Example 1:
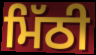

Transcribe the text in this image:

ਮਿੱਠੀ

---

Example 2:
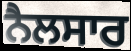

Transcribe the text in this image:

ਨੈਲਸਾਰ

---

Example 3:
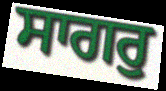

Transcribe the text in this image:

ਸਾਗਰੁ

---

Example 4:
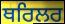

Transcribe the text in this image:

ਥਰਿਲਰ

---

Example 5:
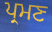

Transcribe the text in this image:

ਪ੍ਰਮਣ